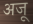
अजू